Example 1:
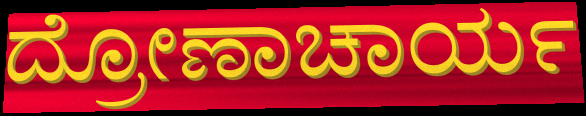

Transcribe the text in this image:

ದ್ರೋಣಾಚಾರ್ಯ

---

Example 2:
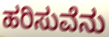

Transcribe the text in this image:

ಹರಿಸುವೆನು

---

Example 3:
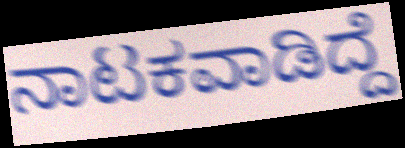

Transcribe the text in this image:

ನಾಟಕವಾಡಿದ್ದೆ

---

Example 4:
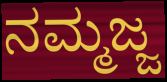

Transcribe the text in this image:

ನಮ್ಮಜ್ಜ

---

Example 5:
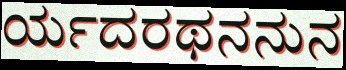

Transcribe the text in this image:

ರ್ಯದರಥನನುನ